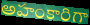
అహంకారిగా